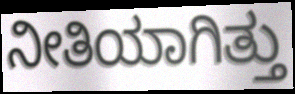
ನೀತಿಯಾಗಿತ್ತು